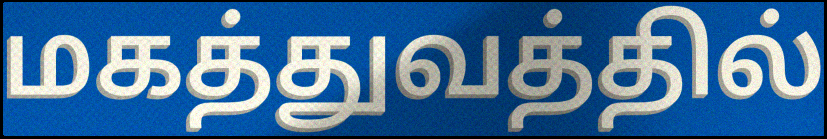
மகத்துவத்தில்